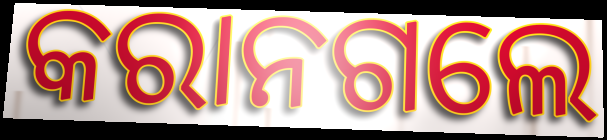
କରାନଗଲେ